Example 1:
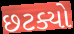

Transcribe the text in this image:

છટક્યો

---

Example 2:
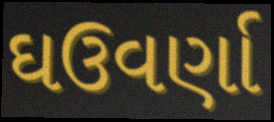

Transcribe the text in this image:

ઘઉવર્ણા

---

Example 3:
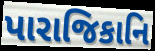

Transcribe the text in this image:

પારાજિકાનિ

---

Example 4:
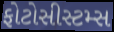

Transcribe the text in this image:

ફોટોસીસ્ટમ્સ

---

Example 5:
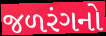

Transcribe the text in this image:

જળરંગનો